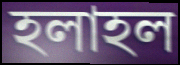
হলাহল